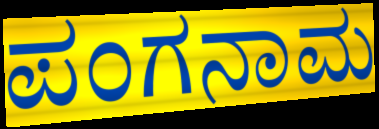
ಪಂಗನಾಮ